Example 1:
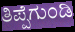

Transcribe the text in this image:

ತಿಪ್ಪೆಗುಂಡಿ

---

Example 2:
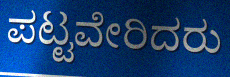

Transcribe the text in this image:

ಪಟ್ಟವೇರಿದರು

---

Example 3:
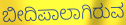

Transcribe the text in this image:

ಬೀದಿಪಾಲಾಗಿರುವ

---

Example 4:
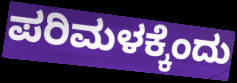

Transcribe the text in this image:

ಪರಿಮಳಕ್ಕೆಂದು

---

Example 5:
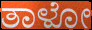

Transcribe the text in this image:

ತಾಳೋ